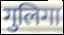
गुलिगा